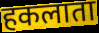
हकलाता